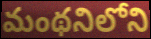
మంథనిలోని